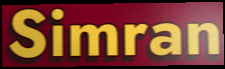
Simran